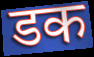
डक